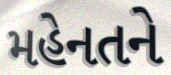
મહેનતને